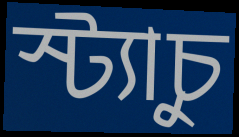
স্ট্যাচু